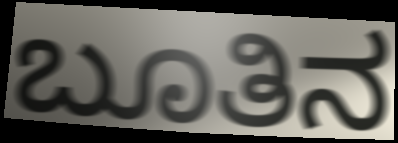
ಬೂತಿನ